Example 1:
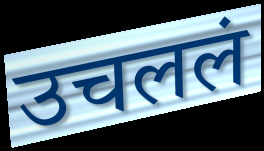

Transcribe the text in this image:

उचललं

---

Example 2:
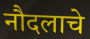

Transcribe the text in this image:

नौदलाचे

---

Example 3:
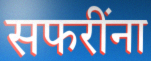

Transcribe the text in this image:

सफरींना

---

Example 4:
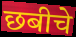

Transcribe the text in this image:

छबीचे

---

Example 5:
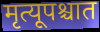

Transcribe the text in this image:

मृत्यूपश्चात